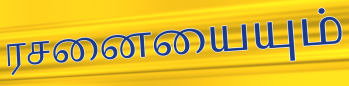
ரசனையையும்